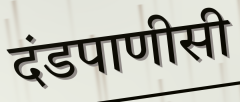
दंडपाणीसी